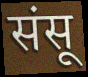
संसू